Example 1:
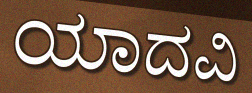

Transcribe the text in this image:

ಯಾದವಿ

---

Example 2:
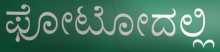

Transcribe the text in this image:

ಫೋಟೋದಲ್ಲಿ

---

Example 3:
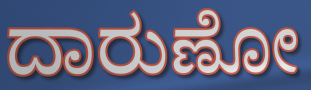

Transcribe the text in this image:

ದಾರುಣೋ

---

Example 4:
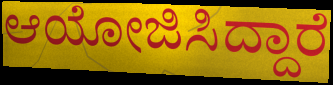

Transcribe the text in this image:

ಆಯೋಜಿಸಿದ್ದಾರೆ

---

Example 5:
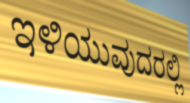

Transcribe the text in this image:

ಇಳಿಯುವುದರಲ್ಲಿ